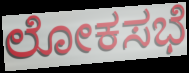
ಲೋಕಸಭೆ